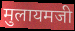
मुलायमजी